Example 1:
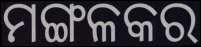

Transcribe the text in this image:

ମଙ୍ଗଳକର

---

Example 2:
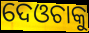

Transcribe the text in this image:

ଦେଓଚାକୁ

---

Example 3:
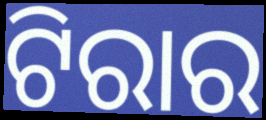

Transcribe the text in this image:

ଟିରାର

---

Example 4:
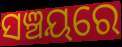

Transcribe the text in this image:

ସଞ୍ଚୟରେ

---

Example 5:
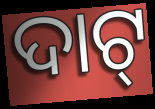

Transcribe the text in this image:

ଦାଟ୍